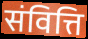
संवित्ति